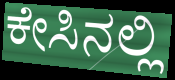
ಕೇಸಿನಲ್ಲಿ